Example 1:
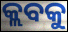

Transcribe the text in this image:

କ୍ଲବକୁ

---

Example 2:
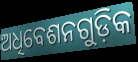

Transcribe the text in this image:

ଅଧିବେଶନଗୁଡ଼ିକ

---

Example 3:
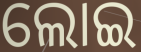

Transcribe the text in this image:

ଲୋଇ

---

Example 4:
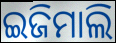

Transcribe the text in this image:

ଇଜିମାଲି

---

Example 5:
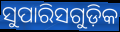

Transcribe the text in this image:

ସୁପାରିସଗୁଡ଼ିକ